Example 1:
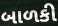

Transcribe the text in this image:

બાળકી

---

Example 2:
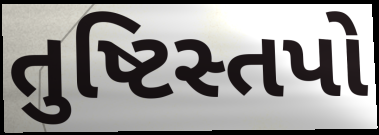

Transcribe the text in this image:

તુષ્ટિસ્તપો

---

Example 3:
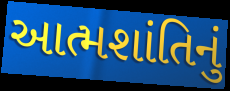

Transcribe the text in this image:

આત્મશાંતિનું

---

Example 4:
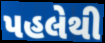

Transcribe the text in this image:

પહલેથી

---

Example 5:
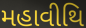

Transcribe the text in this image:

મહાવીથિ